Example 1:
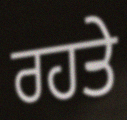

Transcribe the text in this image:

ਰਹਤੇ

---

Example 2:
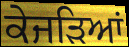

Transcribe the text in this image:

ਕੇਜੜਿਆਂ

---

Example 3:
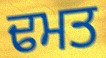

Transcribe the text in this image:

ਢਮਤ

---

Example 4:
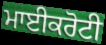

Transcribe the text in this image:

ਮਾਈਕਰੋਟੀ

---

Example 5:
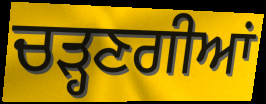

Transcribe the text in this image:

ਚੜ੍ਹਣਗੀਆਂ